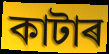
কাটাৰ